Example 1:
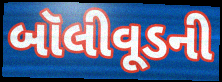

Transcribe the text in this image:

બૉલીવૂડની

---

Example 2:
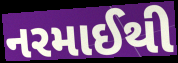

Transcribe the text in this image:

નરમાઈથી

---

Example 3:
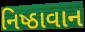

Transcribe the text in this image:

નિષ્ઠાવાન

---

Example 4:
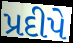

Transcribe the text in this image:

પ્રદીપે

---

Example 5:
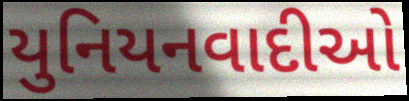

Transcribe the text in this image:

યુનિયનવાદીઓ